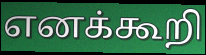
எனக்கூறி